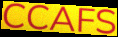
CCAFS